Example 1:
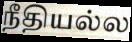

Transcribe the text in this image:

நீதியல்ல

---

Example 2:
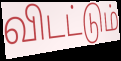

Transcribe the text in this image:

விடட்டும்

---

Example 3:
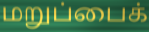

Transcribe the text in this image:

மறுப்பைக்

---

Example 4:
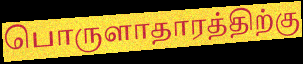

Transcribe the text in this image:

பொருளாதாரத்திற்கு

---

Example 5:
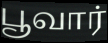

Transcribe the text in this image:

பூவார்